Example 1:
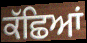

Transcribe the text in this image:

ਕੱਛਿਆਂ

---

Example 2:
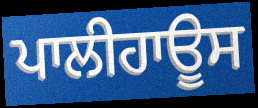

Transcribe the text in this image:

ਪਾਲੀਹਾਊਸ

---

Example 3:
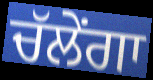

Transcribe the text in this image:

ਚੱਲੇਂਗਾ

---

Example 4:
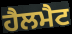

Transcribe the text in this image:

ਹੈਲਮੈਟ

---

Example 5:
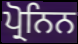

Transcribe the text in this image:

ਪ੍ਰੋਨਿਨ